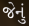
જેનું